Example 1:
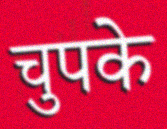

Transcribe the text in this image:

चुपके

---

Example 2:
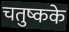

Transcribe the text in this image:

चतुष्कके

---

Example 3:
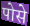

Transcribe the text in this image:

पोसे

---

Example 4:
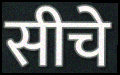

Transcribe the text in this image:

सीचे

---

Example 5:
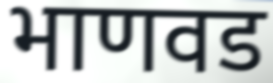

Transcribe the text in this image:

भाणवड